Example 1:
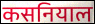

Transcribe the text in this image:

कसनियाल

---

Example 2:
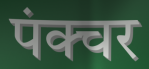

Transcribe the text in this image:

पंक्‍चर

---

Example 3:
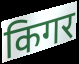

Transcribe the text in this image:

किगर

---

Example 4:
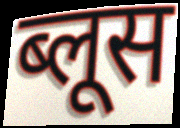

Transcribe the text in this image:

ब्लूस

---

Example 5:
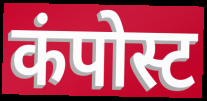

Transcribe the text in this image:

कंपोस्ट